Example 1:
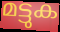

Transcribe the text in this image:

മട്ടുക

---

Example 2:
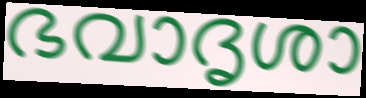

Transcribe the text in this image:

ഭവാദൃശാ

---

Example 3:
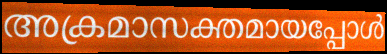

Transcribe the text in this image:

അക്രമാസക്തമായപ്പോൾ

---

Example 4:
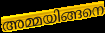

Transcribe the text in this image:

അമ്മയിങ്ങനെ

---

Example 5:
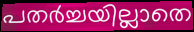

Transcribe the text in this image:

പതർച്ചയില്ലാതെ